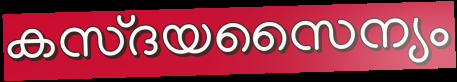
കസ്ദയസൈന്യം